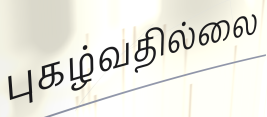
புகழ்வதில்லை